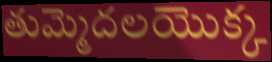
తుమ్మెదలయొక్క